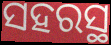
ସହରସ୍ଥ